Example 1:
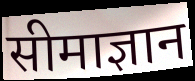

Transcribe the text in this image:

सीमाज्ञान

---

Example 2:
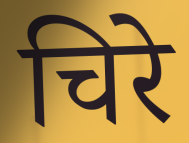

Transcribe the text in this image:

चिरे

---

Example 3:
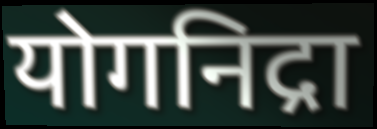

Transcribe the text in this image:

योगनिद्रा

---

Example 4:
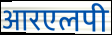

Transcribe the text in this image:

आरएलपी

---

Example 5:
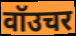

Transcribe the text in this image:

वॉउचर